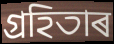
গ্ৰহিতাৰ